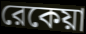
রেকেয়া